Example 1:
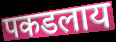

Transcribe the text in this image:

पकडलाय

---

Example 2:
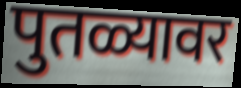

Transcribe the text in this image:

पुतळ्यावर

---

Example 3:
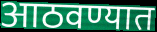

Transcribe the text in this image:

आठवण्यात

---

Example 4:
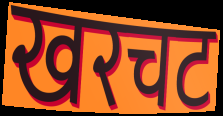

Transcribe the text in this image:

खरचट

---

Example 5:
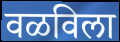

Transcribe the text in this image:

वळविला